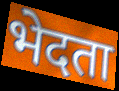
भेदता